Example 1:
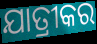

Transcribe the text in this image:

ଯାତ୍ରୀକର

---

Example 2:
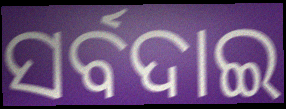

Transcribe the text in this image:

ସର୍ବଦାଇ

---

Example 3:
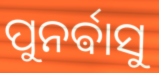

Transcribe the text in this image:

ପୁନର୍ଵାସୁ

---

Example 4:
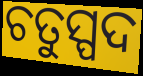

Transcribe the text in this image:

ଚତୁସ୍ପଦ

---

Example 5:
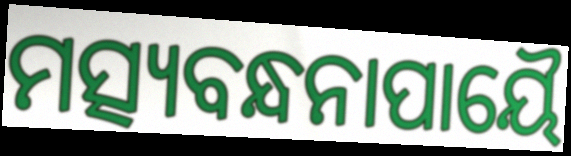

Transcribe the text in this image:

ମତ୍ସ୍ୟବନ୍ଧନାପାୟୈ